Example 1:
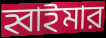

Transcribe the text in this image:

হ্বাইমার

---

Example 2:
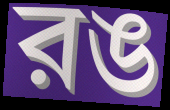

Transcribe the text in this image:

রঙ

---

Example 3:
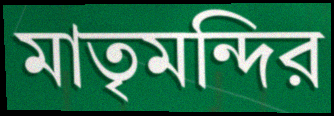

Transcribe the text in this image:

মাতৃমন্দির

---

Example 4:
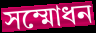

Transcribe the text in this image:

সম্মোধন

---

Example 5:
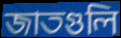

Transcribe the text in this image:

জাতগুলি